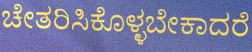
ಚೇತರಿಸಿಕೊಳ್ಳಬೇಕಾದರೆ